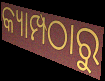
କ୍ୟାମ୍ପଠାରୁ